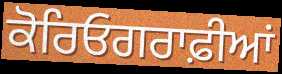
ਕੋਰਿਓਗਰਾਫ਼ੀਆਂ